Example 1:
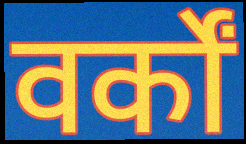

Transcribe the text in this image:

वर्कों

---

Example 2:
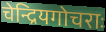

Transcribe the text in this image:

चेन्द्रियगोचराः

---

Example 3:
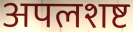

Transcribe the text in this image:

अपलशष्ट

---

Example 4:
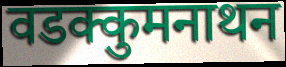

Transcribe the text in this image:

वडक्कुमनाथन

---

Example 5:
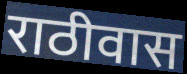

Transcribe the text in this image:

राठीवास